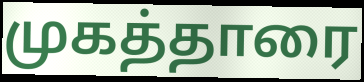
முகத்தாரை